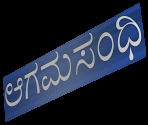
ಆಗಮಸಂಧಿ